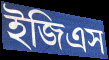
ইজিএস